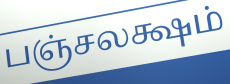
பஞ்சலக்ஷம்